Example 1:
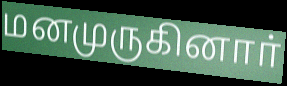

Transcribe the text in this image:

மனமுருகினார்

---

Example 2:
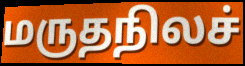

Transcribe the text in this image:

மருதநிலச்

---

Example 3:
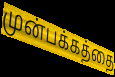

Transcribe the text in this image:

முன்பக்கத்தை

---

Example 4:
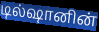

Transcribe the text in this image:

டில்ஷானின்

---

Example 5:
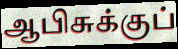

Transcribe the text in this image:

ஆபிசுக்குப்